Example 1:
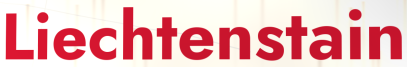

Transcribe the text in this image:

Liechtenstain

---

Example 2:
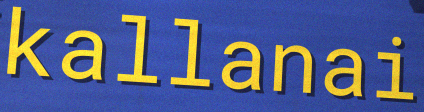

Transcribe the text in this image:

kallanai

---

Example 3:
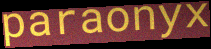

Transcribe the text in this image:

paraonyx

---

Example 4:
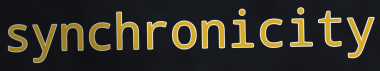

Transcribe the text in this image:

synchronicity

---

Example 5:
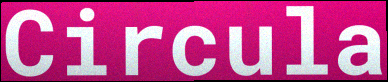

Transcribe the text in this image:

Circula